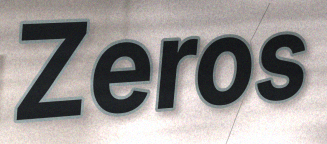
Zeros